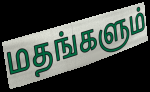
மதங்களும்